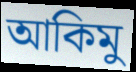
আকিমু